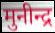
मुनीन्द्र